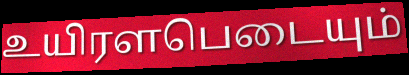
உயிரளபெடையும்